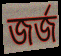
জৰ্জ